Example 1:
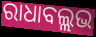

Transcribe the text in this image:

ରାଧାବଲ୍ଲଭ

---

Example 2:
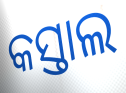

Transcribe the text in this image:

କସ୍ତାଲ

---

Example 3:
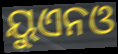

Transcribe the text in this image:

ୟୁଏନଓ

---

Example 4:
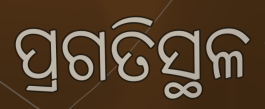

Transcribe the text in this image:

ପ୍ରଗତିସ୍ଥଳ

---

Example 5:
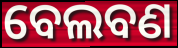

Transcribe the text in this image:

ବେଲବଣ